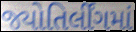
જ્યોતિર્લીંગમાં